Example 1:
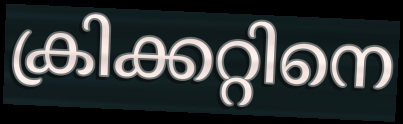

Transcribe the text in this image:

ക്രിക്കറ്റിനെ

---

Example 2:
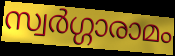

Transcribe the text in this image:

സ്വർഗ്ഗാരാമം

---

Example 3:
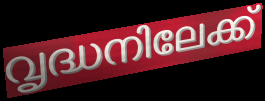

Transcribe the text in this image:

വൃദ്ധനിലേക്ക്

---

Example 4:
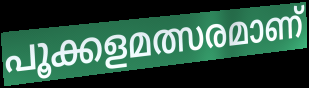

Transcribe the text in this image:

പൂക്കളമത്സരമാണ്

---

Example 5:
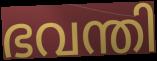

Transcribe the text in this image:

ഭവന്തി